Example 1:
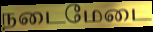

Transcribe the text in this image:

நடைமேடை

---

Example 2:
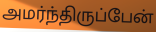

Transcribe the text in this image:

அமர்ந்திருப்பேன்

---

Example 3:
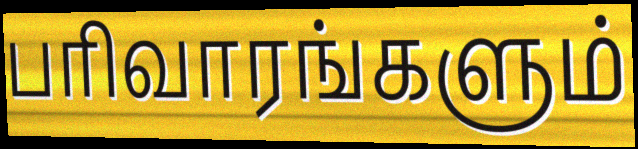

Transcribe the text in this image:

பரிவாரங்களும்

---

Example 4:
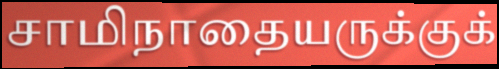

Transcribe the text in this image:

சாமிநாதையருக்குக்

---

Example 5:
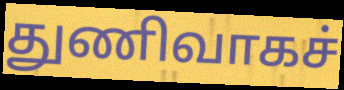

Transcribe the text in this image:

துணிவாகச்